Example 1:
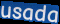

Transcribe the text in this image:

usada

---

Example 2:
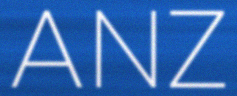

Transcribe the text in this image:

ANZ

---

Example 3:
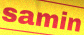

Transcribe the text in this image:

samin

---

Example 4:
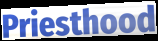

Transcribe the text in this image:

Priesthood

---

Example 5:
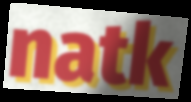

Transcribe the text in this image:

natk